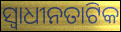
ସ୍ୱାଧୀନତାଟିକ